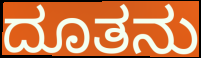
ದೂತನು